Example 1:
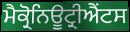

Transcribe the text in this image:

ਮੈਕ੍ਰੋਨਿਊਟ੍ਰੀਐਂਟਸ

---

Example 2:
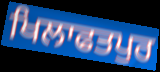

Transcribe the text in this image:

ਖਿਲਾਫਤਪੁਰ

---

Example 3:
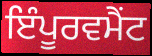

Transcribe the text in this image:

ਇੰਪੂਰਵਮੈਂਟ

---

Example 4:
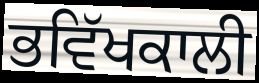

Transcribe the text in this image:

ਭਵਿੱਖਕਾਲੀ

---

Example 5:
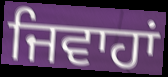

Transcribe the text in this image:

ਜਿਵਾਹਾਂ